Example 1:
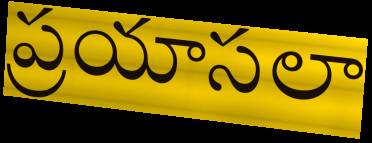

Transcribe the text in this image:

ప్రయాసలా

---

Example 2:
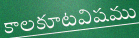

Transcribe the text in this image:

కాలకూటవిషము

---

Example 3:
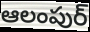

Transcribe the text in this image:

ఆలంపుర్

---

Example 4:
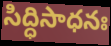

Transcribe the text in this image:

సిద్ధిసాధనః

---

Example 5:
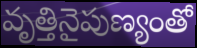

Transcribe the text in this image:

వృత్తినైపుణ్యంతో